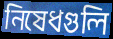
নিষেধগুলি